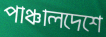
পাঞ্চালদেশে